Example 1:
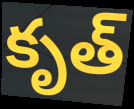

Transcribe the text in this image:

కృత్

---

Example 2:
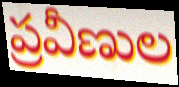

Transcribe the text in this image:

ప్రవీణుల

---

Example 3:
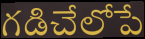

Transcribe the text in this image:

గడిచేలోపే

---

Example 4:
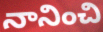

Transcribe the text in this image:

నానించి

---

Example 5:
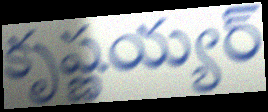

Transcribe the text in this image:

కృష్ణయ్యర్